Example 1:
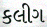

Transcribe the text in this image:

કલીગ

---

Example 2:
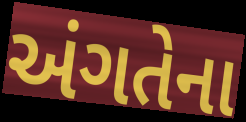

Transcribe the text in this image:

અંગતેના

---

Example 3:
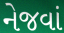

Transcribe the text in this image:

નેજવાં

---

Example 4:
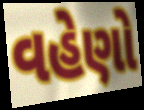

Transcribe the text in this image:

વહેણો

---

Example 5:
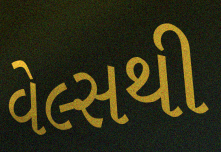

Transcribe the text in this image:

વેલ્સથી